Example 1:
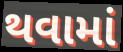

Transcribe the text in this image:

થવામાં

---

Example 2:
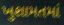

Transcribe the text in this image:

ખુશામતમાં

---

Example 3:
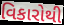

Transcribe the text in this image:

વિકારોથી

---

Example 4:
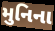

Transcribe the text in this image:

મુનિના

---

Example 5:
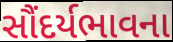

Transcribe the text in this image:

સૌંદર્યભાવના